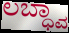
ಲಬ್ಧ್ವಾ